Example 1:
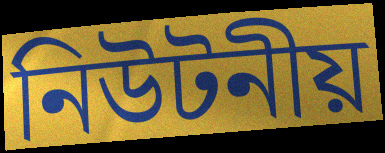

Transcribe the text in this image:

নিউটনীয়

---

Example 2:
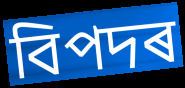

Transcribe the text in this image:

বিপদৰ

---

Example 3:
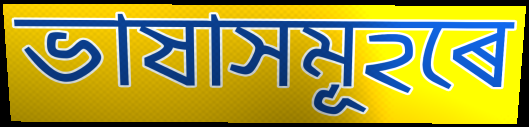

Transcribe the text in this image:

ভাষাসমূহৰে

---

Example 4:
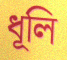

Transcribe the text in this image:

ধূলি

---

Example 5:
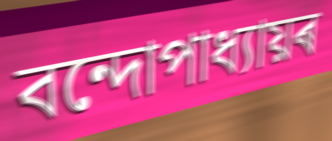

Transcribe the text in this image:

বন্দোপাধ্যায়ৰ